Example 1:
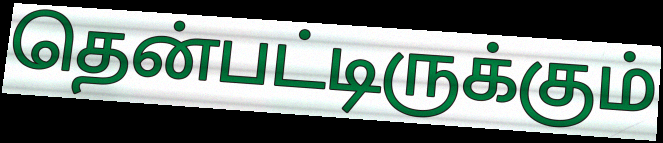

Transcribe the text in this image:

தென்பட்டிருக்கும்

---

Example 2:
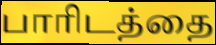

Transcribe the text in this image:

பாரிடத்தை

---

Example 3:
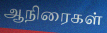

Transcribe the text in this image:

ஆநிரைகள்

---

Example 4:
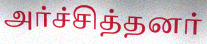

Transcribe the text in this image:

அர்ச்சித்தனர்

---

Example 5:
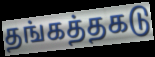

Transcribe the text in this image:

தங்கத்தகடு